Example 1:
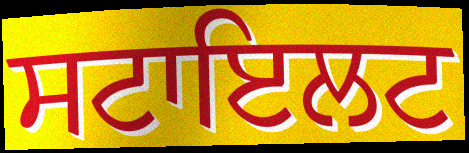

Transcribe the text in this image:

ਸਟਾਇਲਟ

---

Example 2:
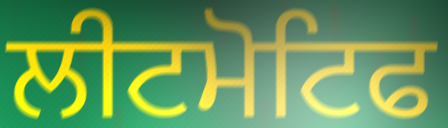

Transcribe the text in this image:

ਲੀਟਮੋਟਿਫ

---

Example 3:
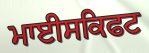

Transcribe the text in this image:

ਮਾਈਸਕਿਫਟ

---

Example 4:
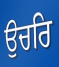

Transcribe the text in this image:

ਉਚਰਿ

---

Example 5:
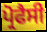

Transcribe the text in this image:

ਪ੍ਰੋਫੈਸੀ